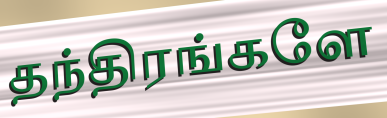
தந்திரங்களே